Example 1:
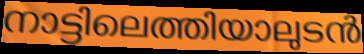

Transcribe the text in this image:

നാട്ടിലെത്തിയാലുടൻ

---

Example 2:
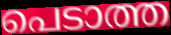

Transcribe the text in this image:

പെടാത്ത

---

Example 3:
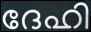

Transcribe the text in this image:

ദേഹി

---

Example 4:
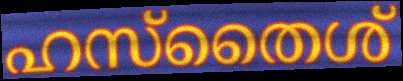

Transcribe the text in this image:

ഹസ്തൈശ്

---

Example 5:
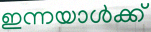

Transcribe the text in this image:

ഇന്നയാൾക്ക്